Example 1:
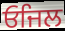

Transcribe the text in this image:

ਓਜਿਲ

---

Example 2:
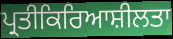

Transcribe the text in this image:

ਪ੍ਰਤੀਕਿਰਿਆਸ਼ੀਲਤਾ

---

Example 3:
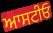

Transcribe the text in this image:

ਆਸਟੀਓ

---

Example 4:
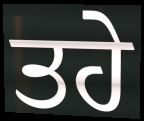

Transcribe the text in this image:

ਤਹੇ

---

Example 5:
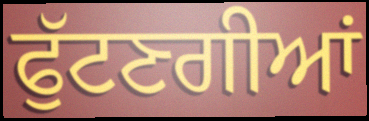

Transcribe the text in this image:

ਫੁੱਟਣਗੀਆਂ